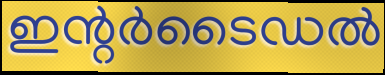
ഇന്റർടൈഡൽ